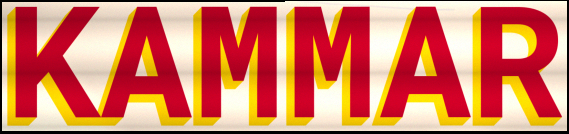
KAMMAR